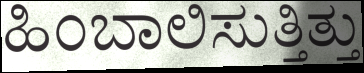
ಹಿಂಬಾಲಿಸುತ್ತಿತ್ತು